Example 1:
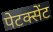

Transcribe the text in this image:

पेटक्सेंट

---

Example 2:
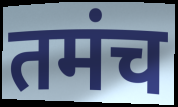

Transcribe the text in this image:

तमंच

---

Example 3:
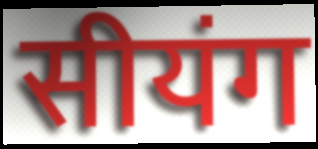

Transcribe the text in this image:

सीयंग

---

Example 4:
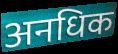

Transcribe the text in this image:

अनधिक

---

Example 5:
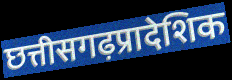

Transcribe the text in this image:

छत्तीसगढ़प्रादेशिक